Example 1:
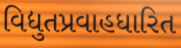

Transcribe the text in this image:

વિદ્યુતપ્રવાહધારિત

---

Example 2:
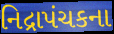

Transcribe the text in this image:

નિદ્રાપંચકના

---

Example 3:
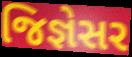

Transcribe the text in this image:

જિજ્ઞેસર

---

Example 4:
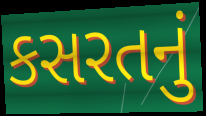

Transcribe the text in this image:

કસરતનું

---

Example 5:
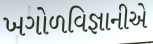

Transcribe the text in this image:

ખગોળવિજ્ઞાનીએ